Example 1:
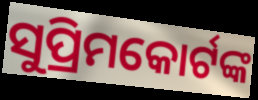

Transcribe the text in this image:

ସୁପ୍ରିମକୋର୍ଟଙ୍କ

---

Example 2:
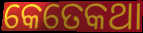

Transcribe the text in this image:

କେତେକଥା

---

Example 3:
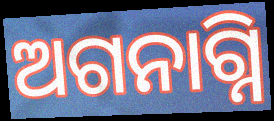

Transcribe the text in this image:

ଅଗନାଗ୍ନି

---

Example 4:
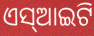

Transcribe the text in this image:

ଏସ୍ଆଇଟି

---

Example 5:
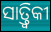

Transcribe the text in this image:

ସାତ୍ତ୍ୱିକୀ